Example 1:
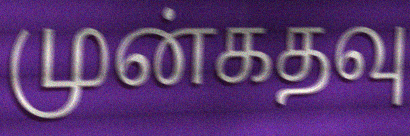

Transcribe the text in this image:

முன்கதவு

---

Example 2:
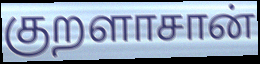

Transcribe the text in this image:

குறளாசான்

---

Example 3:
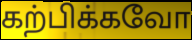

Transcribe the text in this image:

கற்பிக்கவோ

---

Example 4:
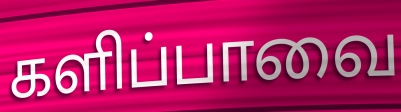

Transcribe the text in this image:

களிப்பாவை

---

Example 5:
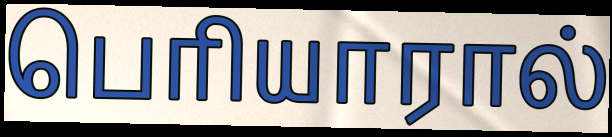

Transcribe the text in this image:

பெரியாரால்